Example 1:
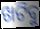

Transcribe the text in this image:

ଖଟିବୁ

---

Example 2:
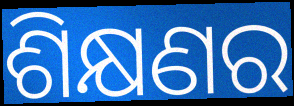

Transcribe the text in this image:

ଶିକ୍ଷଣର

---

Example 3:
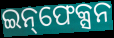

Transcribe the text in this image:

ଇନ୍‌ଫେକ୍ସନ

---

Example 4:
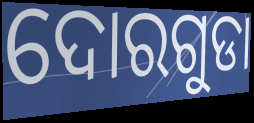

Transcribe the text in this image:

ଦୋରଗୁଡା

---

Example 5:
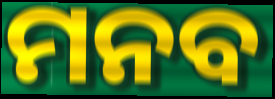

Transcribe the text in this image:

ମନବ